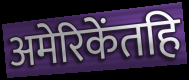
अमेरिकेंतहि